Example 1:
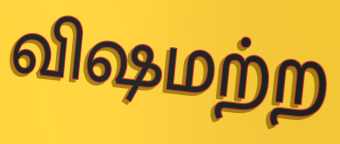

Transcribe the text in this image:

விஷமற்ற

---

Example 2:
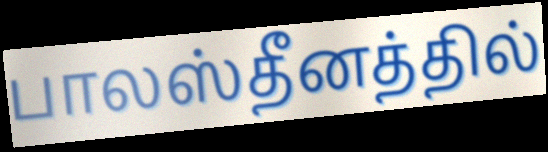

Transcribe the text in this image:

பாலஸ்தீனத்தில்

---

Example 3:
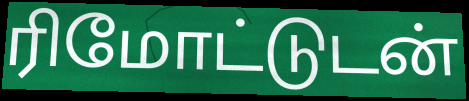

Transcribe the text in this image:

ரிமோட்டுடன்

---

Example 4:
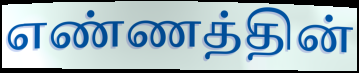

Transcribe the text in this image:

எண்ணத்தின்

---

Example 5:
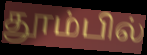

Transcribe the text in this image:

தூம்பில்